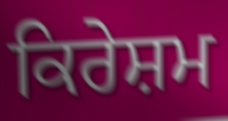
ਕਿਰੇਸ਼ਮ